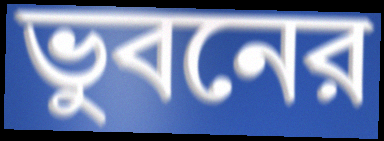
ভুবনের